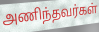
அணிந்தவர்கள்